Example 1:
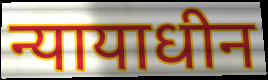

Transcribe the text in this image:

न्यायाधीन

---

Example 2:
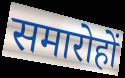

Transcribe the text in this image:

समारोहों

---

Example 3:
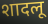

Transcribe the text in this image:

शादलू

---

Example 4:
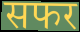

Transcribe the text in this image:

सफर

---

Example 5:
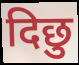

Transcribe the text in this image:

दिछु